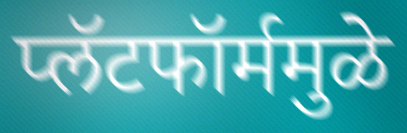
प्लॅटफॉर्ममुळे